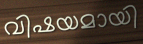
വിഷയമായി